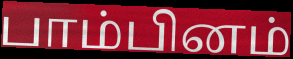
பாம்பினம்